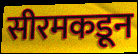
सीरमकडून